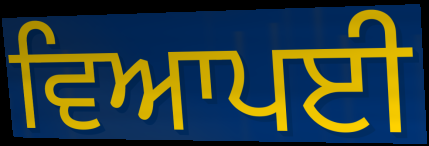
ਵਿਆਪਈ